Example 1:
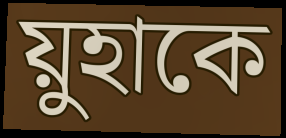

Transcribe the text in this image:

য়ুহাকে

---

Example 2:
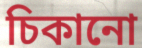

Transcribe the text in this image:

চিকানো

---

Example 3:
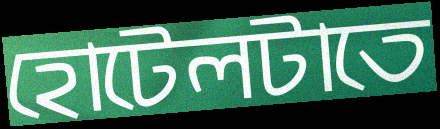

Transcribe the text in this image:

হোটেলটাতে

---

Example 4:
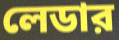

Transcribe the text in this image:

লেডার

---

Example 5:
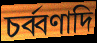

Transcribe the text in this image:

চর্ব্বণাদি